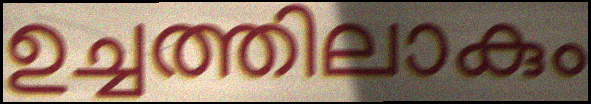
ഉച്ചത്തിലാകും